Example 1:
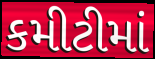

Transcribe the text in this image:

કમીટીમાં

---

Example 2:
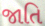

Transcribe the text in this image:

જાતિ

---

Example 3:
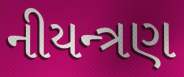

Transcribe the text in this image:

નીયન્ત્રણ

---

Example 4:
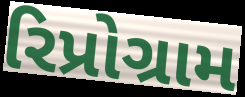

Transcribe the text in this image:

રિપ્રોગ્રામ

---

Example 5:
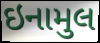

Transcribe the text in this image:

ઇનામુલ